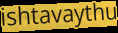
ishtavaythu